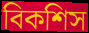
বিকশিস